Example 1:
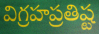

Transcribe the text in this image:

విగ్రహప్రతిష్ట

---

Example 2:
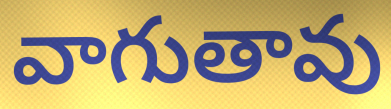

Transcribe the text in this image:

వాగుతావు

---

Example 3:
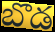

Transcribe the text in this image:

బొడ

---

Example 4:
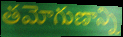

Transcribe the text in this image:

తమోగుణాన్ని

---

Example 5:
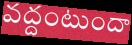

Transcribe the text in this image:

వద్దంటుందా